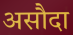
असौदा